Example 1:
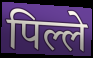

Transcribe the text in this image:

पिल्ले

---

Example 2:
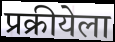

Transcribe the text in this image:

प्रक्रीयेला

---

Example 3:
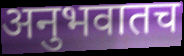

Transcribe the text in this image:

अनुभवातच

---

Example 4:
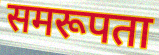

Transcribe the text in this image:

समरूपता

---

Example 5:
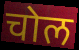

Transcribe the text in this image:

चोल